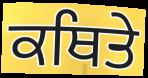
ਕਥਿਤੇ